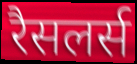
रैसलर्स